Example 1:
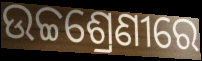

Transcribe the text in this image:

ଉଚ୍ଚଶ୍ରେଣୀରେ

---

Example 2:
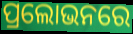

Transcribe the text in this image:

ପ୍ରଲୋଭନରେ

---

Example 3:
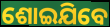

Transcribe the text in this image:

ଶୋଇଯିବେ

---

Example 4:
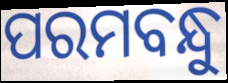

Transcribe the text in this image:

ପରମବନ୍ଧୁ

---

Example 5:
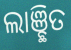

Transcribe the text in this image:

ଲାଞ୍ଛିତ